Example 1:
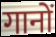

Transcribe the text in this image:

गानों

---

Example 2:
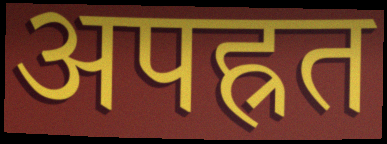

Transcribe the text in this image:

अपह्रत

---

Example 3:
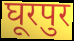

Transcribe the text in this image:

घूरपुर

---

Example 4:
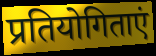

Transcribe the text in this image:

प्रतियोगिताएं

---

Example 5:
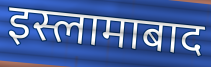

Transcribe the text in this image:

इस्लामाबाद